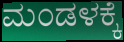
ಮಂಡಳಕ್ಕೆ